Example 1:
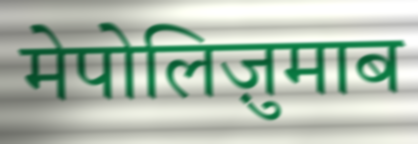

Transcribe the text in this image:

मेपोलिज़ुमाब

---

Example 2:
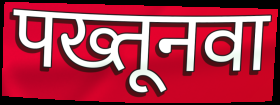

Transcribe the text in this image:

पख्तूनवा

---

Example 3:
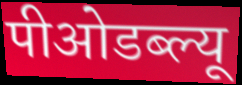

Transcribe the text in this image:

पीओडब्ल्यू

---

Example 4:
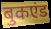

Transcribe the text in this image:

बुकएंड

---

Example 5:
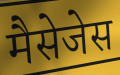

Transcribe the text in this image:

मैसेजेस